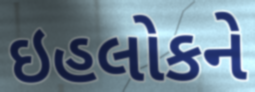
ઇહલોકને